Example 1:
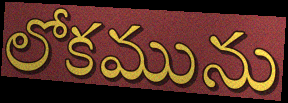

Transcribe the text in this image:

లోకమును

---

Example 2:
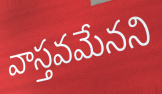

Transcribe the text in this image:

వాస్తవమేనని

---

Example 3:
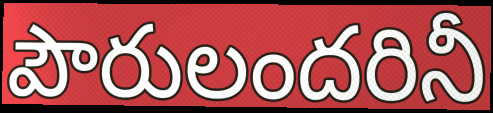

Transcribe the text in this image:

పౌరులందరినీ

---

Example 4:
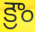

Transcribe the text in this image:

క్రౌం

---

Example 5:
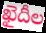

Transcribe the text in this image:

ఖైదీల